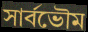
সাৰ্বভৌম